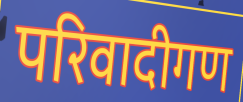
परिवादीगण